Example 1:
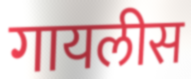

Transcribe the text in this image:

गायलीस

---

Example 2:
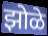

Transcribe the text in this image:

झोळे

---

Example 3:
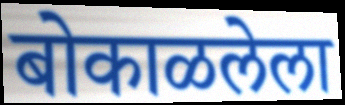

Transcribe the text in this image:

बोकाळलेला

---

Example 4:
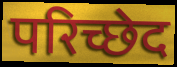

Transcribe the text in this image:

परिच्छेद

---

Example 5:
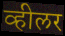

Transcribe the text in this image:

व्हीलर